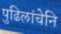
पुढिलांचेनि